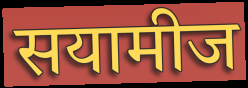
सयामीज